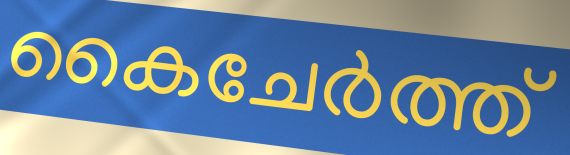
കൈചേർത്ത്